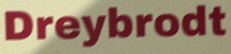
Dreybrodt